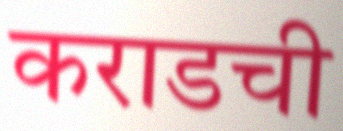
कराडची